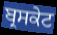
ਬ੍ਰਸਕੇਟ